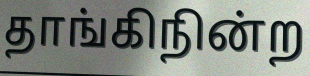
தாங்கிநின்ற